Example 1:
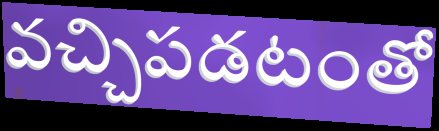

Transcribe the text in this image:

వచ్చిపడటంతో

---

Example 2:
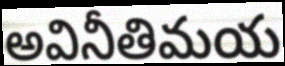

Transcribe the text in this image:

అవినీతిమయ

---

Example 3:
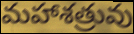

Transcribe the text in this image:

మహాశత్రువు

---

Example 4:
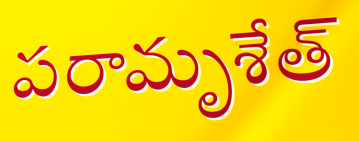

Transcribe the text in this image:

పరామృశేత్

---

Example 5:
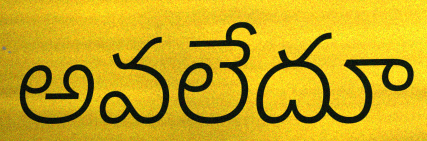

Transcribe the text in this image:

అవలేదూ